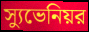
স্যুভেনিয়র